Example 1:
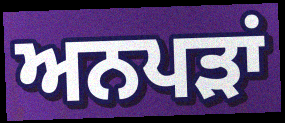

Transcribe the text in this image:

ਅਨਪੜਾਂ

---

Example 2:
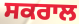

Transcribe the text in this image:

ਸਕਰਾਲ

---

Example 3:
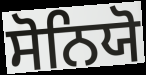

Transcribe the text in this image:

ਸੋਨਿਯੋ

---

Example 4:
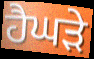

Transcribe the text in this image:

ਹੈਘੜੇ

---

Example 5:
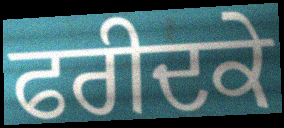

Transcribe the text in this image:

ਫਰੀਦਕੇ